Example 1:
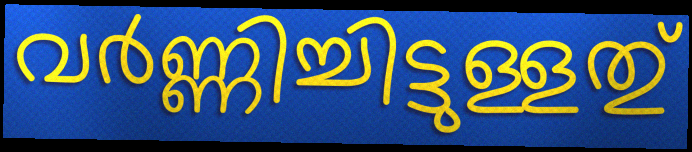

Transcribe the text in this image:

വർണ്ണിച്ചിട്ടുള്ളതു്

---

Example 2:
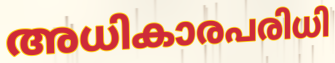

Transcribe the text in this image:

അധികാരപരിധി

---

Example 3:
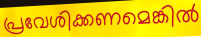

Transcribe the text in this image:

പ്രവേശിക്കണമെങ്കിൽ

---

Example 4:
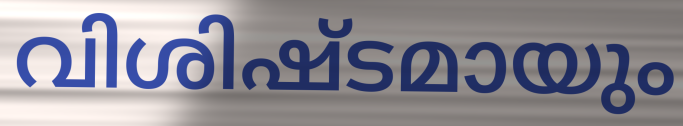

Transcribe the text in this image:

വിശിഷ്ടമായും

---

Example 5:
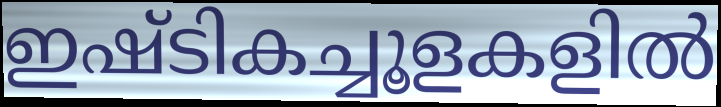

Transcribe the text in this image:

ഇഷ്ടികച്ചൂളകളിൽ